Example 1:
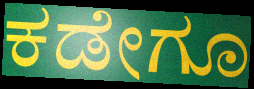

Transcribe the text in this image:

ಕಡೇಗೂ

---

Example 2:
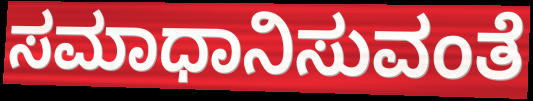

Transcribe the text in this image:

ಸಮಾಧಾನಿಸುವಂತೆ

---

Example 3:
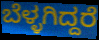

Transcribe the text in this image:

ಬೆಳ್ಳಗಿದ್ದರೆ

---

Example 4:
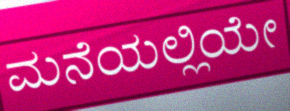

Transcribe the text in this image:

ಮನೆಯಲ್ಲಿಯೇ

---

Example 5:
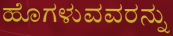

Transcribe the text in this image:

ಹೊಗಳುವವರನ್ನು